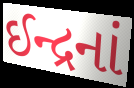
ઈન્દ્રનાં